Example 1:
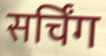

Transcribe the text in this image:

सर्चिंग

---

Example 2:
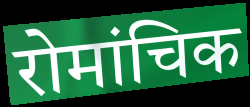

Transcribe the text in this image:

रोमांचिक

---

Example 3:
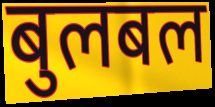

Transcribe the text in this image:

बुलबल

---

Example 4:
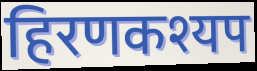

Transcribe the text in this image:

हिरणकश्यप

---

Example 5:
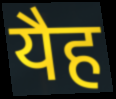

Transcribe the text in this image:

यैह